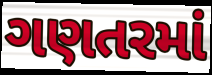
ગણતરમાં